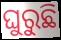
ଘୁରୁଛି